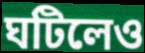
ঘটিলেও